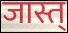
जास्त्